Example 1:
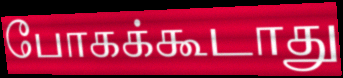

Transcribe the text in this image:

போகக்கூடாது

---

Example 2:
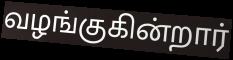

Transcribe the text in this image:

வழங்குகின்றார்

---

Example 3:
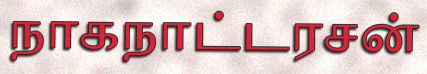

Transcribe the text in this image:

நாகநாட்டரசன்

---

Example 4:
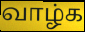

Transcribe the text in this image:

வாழ்க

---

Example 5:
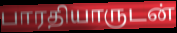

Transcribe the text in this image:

பாரதியாருடன்